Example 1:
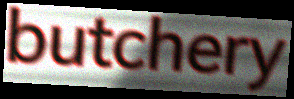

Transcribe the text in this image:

butchery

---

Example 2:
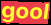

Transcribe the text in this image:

gool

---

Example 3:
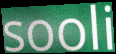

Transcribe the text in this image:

sooli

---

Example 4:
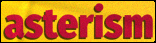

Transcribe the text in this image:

asterism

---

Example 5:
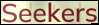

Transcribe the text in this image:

Seekers